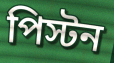
পিস্টন